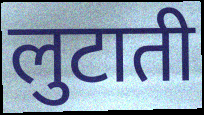
लुटाती